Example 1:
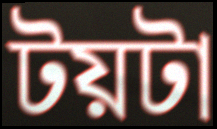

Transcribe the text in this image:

টয়টা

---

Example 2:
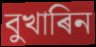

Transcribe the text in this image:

বুখাৰিন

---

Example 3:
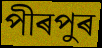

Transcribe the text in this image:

পীৰপুৰ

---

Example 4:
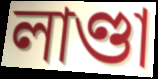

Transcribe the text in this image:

লাণ্ডা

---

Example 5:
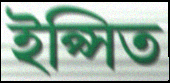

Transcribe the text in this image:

ইপ্সিত